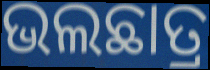
ଭଲଛାତ୍ର